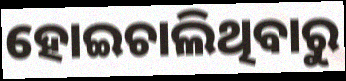
ହୋଇଚାଲିଥିବାରୁ